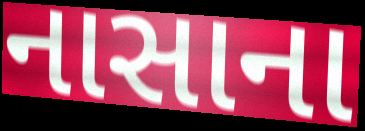
નાસાના